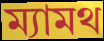
ম্যামথ